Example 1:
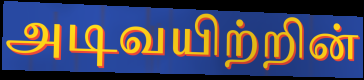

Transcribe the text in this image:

அடிவயிற்றின்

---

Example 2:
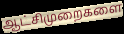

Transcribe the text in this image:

ஆட்சிமுறைகளை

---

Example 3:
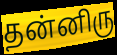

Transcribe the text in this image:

தன்னிரு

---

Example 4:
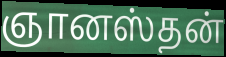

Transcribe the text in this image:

ஞானஸ்தன்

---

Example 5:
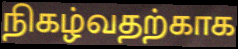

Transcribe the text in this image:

நிகழ்வதற்காக